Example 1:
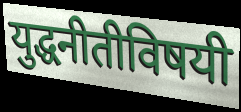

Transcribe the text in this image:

युद्धनीतीविषयी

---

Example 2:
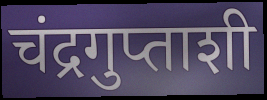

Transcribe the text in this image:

चंद्रगुप्ताशी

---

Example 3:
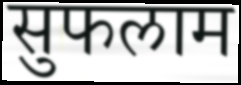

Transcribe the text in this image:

सुफलाम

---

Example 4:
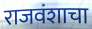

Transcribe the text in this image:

राजवंशाचा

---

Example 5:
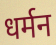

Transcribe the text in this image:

धर्मन